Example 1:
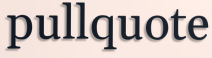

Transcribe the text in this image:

pullquote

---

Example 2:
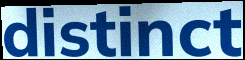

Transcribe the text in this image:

distinct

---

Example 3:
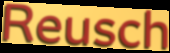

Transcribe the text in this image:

Reusch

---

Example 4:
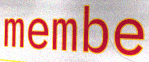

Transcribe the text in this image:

membe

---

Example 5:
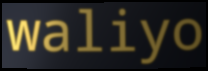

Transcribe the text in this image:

waliyo